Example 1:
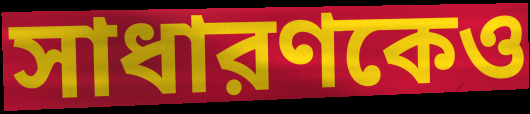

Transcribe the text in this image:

সাধারণকেও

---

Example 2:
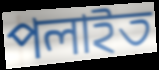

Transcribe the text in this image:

পলাইত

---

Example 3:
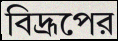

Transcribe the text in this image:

বিদ্রূপের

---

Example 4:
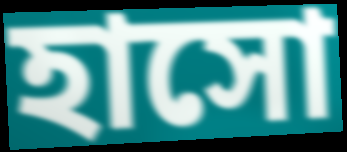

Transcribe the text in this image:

হাসো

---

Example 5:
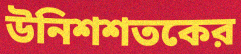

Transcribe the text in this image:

উনিশশতকের